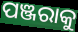
ପଞ୍ଜରାକୁ